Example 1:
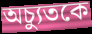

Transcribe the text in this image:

অচ্যুতকে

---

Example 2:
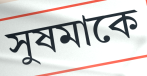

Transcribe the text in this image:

সুষমাকে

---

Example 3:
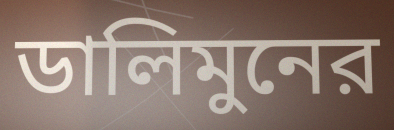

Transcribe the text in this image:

ডালিমুনের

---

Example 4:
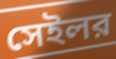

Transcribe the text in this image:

সেইলর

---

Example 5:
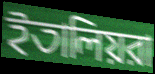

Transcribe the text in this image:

ইতালিয়রা